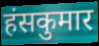
हंसकुमार